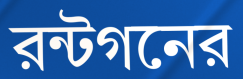
রন্টগনের